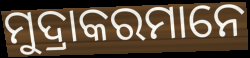
ମୁଦ୍ରାକରମାନେ